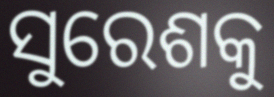
ସୁରେଶକୁ